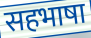
सहभाषा